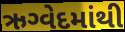
ઋગ્વેદમાંથી